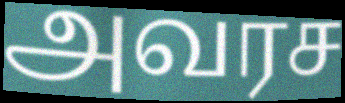
அவரச